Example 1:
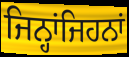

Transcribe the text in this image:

ਜਿਨ੍ਹਾਂਜਿਹਨਾਂ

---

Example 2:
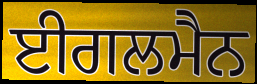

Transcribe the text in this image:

ਈਗਲਮੈਨ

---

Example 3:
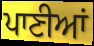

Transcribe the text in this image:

ਪਾਣੀਆਂ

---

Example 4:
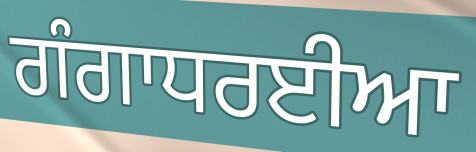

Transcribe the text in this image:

ਗੰਗਾਧਰਈਆ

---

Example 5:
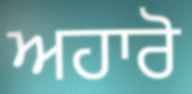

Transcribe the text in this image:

ਅਹਾਰੋ